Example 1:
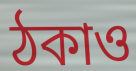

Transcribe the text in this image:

ঠকাও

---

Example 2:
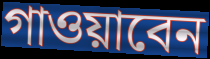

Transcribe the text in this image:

গাওয়াবেন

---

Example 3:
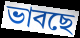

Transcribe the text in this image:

ভাবছে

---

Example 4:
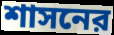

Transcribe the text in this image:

শাসনের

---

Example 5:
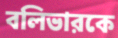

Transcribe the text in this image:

বলিভারকে